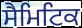
ਸੈਮਿਟਿਕ